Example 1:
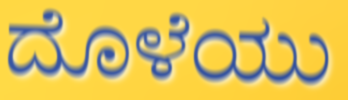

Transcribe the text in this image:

ದೊಳೆಯು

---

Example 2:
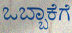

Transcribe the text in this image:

ಒಬ್ಬಾಕೆಗೆ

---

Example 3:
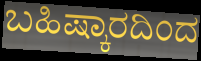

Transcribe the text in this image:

ಬಹಿಷ್ಕಾರದಿಂದ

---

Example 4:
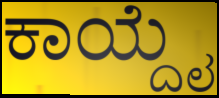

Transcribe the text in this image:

ಕಾಯ್ದೈ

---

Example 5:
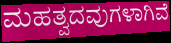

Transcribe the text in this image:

ಮಹತ್ವದವುಗಳಾಗಿವೆ